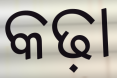
କଢ଼ା